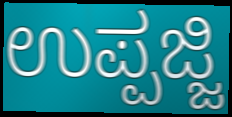
ಉಪ್ಪಜ್ಜಿ